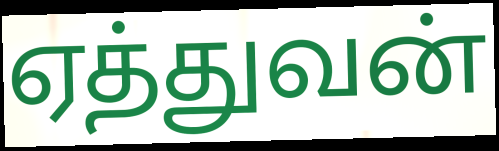
ஏத்துவன்